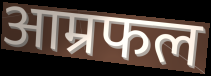
आम्रफल